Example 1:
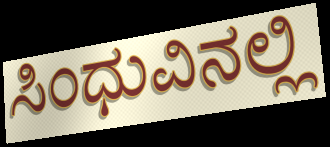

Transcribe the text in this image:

ಸಿಂಧುವಿನಲ್ಲಿ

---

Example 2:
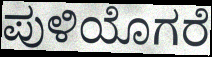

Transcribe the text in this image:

ಪುಳಿಯೊಗರೆ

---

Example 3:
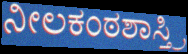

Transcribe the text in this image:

ನೀಲಕಂಠಶಾಸ್ತ್ರಿ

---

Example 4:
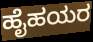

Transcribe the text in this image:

ಹೈಹಯರ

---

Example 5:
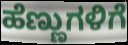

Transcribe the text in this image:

ಹೆಣ್ಣುಗಳಿಗೆ